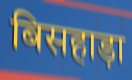
बिसहाड़ा